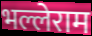
भल्लेराम